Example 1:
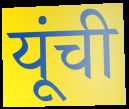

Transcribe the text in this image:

यूंची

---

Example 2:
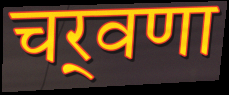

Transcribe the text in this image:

चर्वणा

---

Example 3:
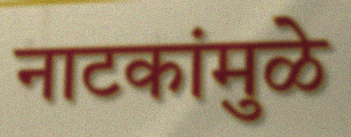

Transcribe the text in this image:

नाटकांमुळे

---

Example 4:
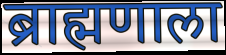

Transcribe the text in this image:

ब्राह्मणाला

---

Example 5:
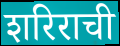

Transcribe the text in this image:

शरिराची